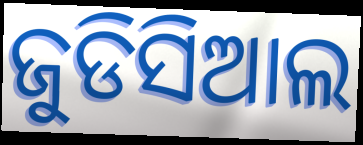
ଜୁଡିସିଆଲ